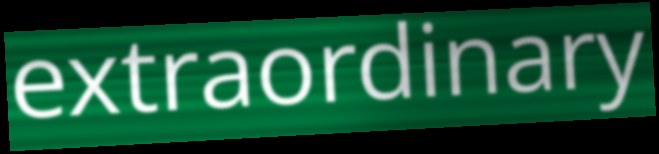
extraordinary